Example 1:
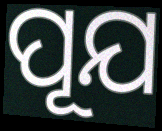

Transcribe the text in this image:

ପୂଯ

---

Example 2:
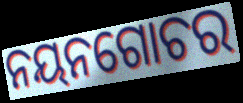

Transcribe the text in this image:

ନୟନଗୋଚର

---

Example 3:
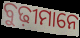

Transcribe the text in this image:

ବୁଢ଼ୀମାନେ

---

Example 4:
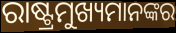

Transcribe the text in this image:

ରାଷ୍ଟ୍ରମୁଖ୍ୟମାନଙ୍କର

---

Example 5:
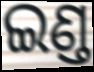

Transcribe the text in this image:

ଇଣ୍ଡ